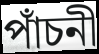
পাঁচনী